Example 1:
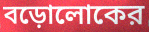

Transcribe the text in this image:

বড়োলোকের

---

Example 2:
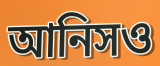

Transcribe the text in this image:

আনিসও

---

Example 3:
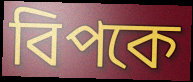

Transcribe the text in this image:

বিপকে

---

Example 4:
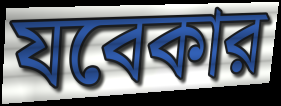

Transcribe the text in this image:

যবেকার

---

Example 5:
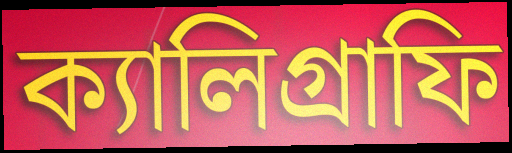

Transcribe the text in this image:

ক্যালিগ্রাফি